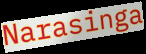
Narasinga